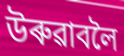
উৰুৱাবলৈ